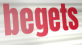
begets